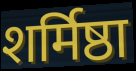
शर्मिष्ठा